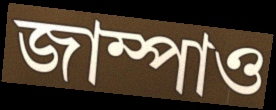
জাম্পাও